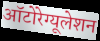
ऑटोरेग्यूलेशन